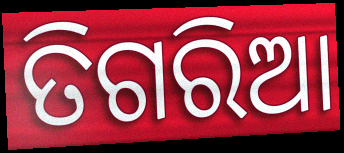
ତିଗରିଆ